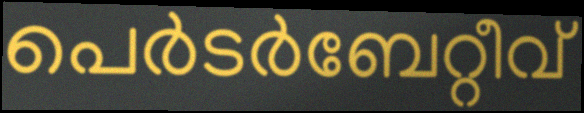
പെർടർബേറ്റീവ്